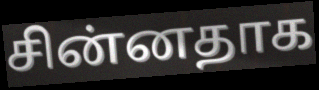
சின்னதாக